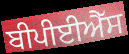
ਬੀਪੀਈਐੱਸ